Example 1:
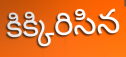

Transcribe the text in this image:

కిక్కిరిసిన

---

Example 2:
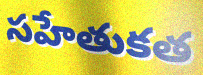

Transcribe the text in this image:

సహేతుకత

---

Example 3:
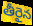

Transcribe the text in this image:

తీరైన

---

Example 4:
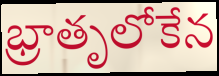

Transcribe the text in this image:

భ్రాతృలోకేన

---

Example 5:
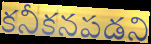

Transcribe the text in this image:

కనీకనపడని